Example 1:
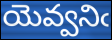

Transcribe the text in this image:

యెవ్వనిఁ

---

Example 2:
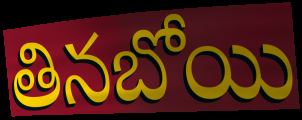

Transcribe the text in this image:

తినబోయి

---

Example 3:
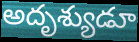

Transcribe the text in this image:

అదృశ్యుడూ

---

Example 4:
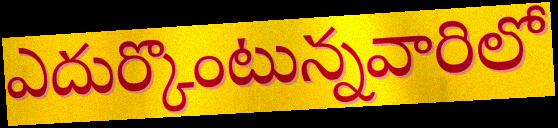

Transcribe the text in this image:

ఎదుర్కొంటున్నవారిలో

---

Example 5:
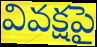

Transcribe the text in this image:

వివక్షపై